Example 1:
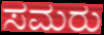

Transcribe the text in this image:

ಸಮರು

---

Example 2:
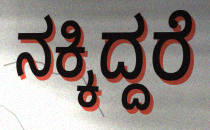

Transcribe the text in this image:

ನಕ್ಕಿದ್ದರೆ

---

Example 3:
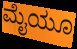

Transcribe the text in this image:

ಮೈಯೂ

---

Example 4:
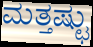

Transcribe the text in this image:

ಮತ್ತಷ್ಟು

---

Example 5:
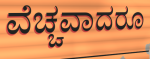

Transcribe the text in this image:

ವೆಚ್ಚವಾದರೂ